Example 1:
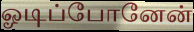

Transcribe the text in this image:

ஓடிப்போனேன்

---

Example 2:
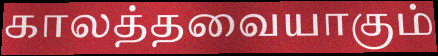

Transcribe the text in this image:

காலத்தவையாகும்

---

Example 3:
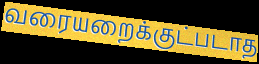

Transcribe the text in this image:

வரையறைக்குட்படாத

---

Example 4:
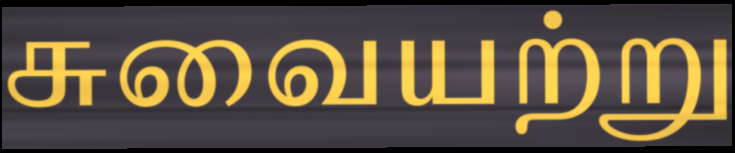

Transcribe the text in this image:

சுவையற்று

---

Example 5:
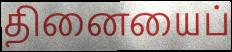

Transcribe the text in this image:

தினையைப்